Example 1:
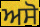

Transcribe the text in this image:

ਅਸੋ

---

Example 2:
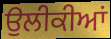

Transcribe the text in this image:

ਉਲੀਕੀਆਂ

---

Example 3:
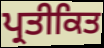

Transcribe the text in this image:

ਪ੍ਰਤੀਕਿਤ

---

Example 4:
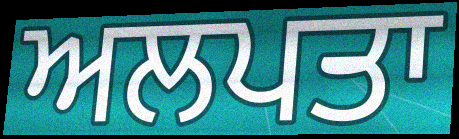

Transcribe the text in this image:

ਅਲਪਤਾ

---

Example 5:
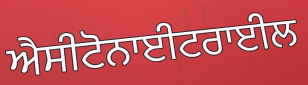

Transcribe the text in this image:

ਐਸੀਟੋਨਾਈਟਰਾਈਲ